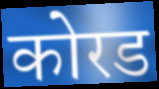
कोरड